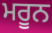
ਮਰੂਨ